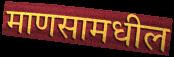
माणसामधील